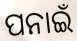
ପନାଇଁ